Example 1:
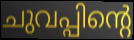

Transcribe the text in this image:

ചുവപ്പിന്റെ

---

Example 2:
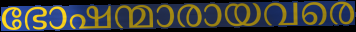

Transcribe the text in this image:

ഭോഷന്മാരായവരെ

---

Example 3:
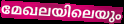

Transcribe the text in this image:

മേഖലയിലെയും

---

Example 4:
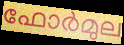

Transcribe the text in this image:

ഫോർമുല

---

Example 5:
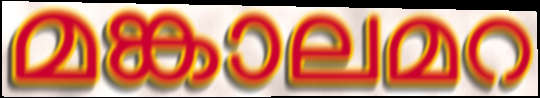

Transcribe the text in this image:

മങ്കാലമറ